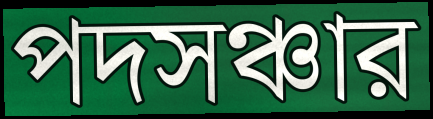
পদসঞ্চার